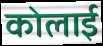
कोलाई